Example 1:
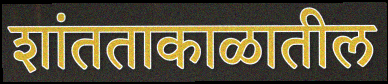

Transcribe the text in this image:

शांतताकाळातील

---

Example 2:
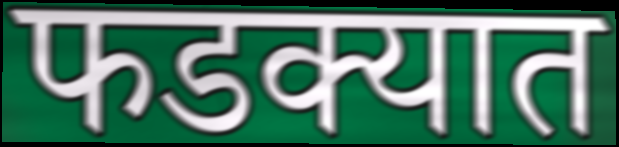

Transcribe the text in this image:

फडक्यात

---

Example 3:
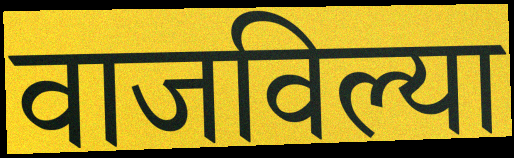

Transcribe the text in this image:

वाजविल्या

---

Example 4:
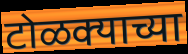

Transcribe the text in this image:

टोळक्याच्या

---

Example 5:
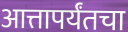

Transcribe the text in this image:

आत्तापर्यंतचा